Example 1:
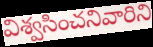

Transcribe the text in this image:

విశ్వసించనివారిని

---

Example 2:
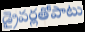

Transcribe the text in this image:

డ్రైవర్లతోపాటు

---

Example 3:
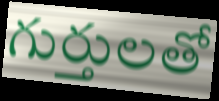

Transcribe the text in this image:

గుర్తులతో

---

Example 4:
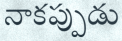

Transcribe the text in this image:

నాకప్పుడు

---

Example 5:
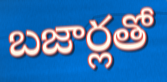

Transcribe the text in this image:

బజార్లతో